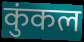
कुंकल